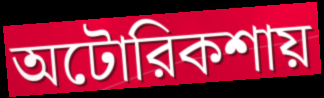
অটোরিকশায়